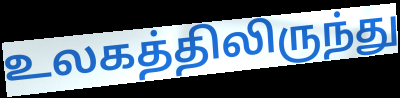
உலகத்திலிருந்து